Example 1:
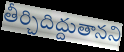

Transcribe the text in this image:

తీర్చిదిద్దుతానని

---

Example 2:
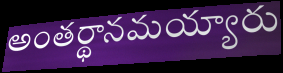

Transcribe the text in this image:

అంతర్థానమయ్యారు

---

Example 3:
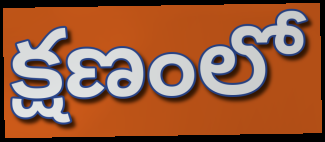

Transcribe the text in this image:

క్షణంలో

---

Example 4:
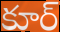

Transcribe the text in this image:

కూర్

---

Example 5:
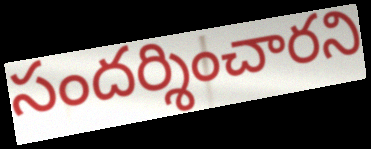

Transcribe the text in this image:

సందర్శించారని